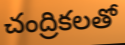
చంద్రికలతో